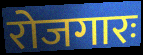
रोजगारः